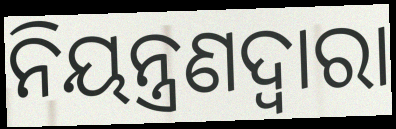
ନିୟନ୍ତ୍ରଣଦ୍ବାରା